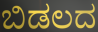
ಬಿಡಲದ